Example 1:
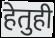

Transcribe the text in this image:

हेतुही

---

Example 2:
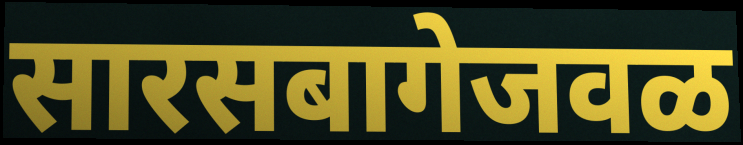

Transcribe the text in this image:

सारसबागेजवळ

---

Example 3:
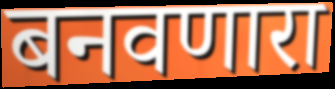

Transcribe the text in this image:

बनवणारा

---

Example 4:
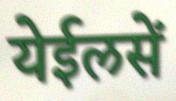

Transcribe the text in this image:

येईलसें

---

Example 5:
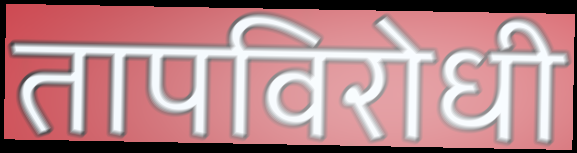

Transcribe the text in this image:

तापविरोधी